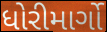
ધોરીમાર્ગો